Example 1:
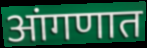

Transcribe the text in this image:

आंगणात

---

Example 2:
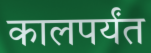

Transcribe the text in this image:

कालपर्यंत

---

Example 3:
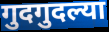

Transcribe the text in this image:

गुदगुदल्या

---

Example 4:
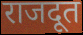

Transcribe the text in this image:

राजदूत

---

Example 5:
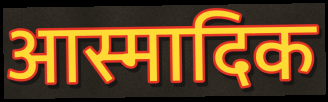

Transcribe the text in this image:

आस्मादिक